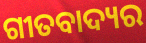
ଗୀତବାଦ୍ୟର